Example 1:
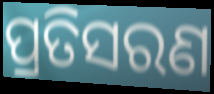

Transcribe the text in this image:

ପ୍ରତିସରଣ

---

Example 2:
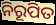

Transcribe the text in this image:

ନିରୂପିତ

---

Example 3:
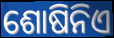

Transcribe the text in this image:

ଶୋଷିନିଏ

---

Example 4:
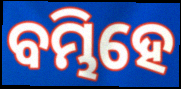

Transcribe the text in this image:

ବମ୍ଭିହେ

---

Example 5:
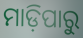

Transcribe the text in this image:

ମାଡ଼ିପାରୁ